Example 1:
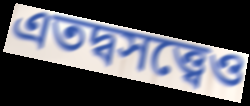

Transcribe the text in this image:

এতদ্বসত্ত্বেও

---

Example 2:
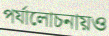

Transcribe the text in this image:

পর্যালোচনায়ও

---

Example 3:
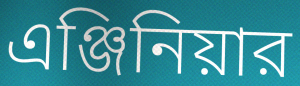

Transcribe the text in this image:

এঞ্জিনিয়ার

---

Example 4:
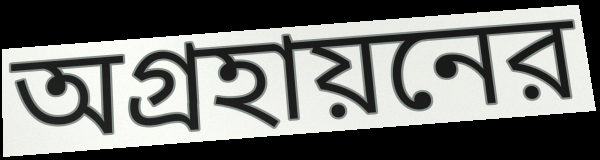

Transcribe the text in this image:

অগ্রহায়নের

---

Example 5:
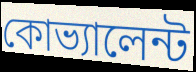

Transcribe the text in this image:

কোভ্যালেন্ট